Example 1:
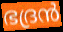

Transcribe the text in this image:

ഭദ്രൻ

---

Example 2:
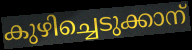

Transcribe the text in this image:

കുഴിച്ചെടുക്കാന്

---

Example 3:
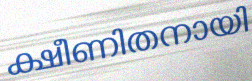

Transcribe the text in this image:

ക്ഷീണിതനായി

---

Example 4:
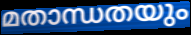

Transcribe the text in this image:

മതാന്ധതയും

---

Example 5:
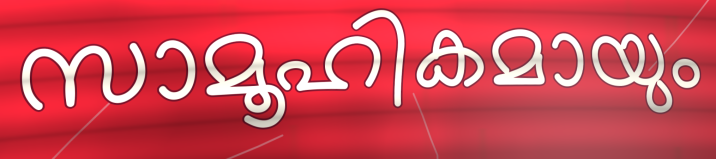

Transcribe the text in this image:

സാമൂഹികമായും